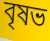
বৃষভ